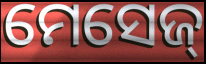
ମେସେଜ୍